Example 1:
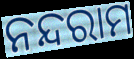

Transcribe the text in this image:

ନନ୍ଦରାମ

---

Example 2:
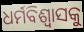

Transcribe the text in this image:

ଧର୍ମବିଶ୍ଵାସକୁ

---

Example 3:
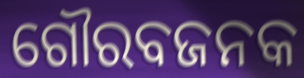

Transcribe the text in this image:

ଗୌରବଜନକ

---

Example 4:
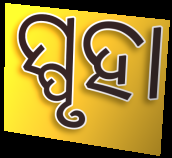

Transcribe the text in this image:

ସ୍ପୃହା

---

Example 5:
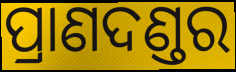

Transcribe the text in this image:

ପ୍ରାଣଦଣ୍ଡର